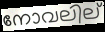
നോവലില്